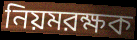
নিয়মরক্ষক